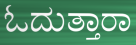
ಓದುತ್ತಾರಾ